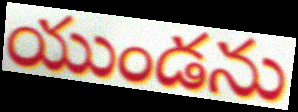
యుండను